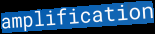
amplification